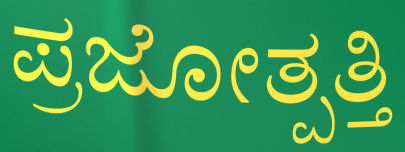
ಪ್ರಜೋತ್ಪತ್ತಿ